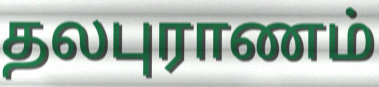
தலபுராணம்